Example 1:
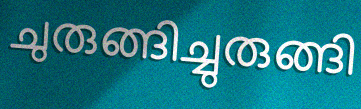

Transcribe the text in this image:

ചുരുങ്ങിച്ചുരുങ്ങി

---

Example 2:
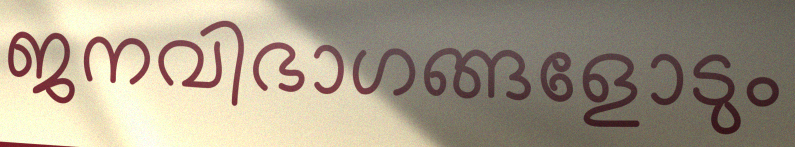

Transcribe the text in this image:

ജനവിഭാഗങ്ങളോടും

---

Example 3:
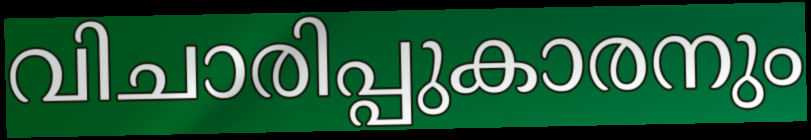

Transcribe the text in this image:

വിചാരിപ്പുകാരനും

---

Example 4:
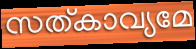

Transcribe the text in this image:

സത്കാവ്യമേ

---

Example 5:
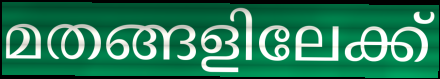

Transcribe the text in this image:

മതങ്ങളിലേക്ക്